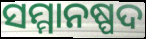
ସମ୍ମାନଷ୍ପଦ